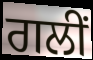
ਗਲੀਂ